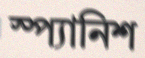
স্প্যানিশ